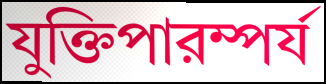
যুক্তিপারম্পর্য